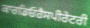
ਕਾਰਡਿਓਰੈਸਪੀਰੇਟਰੀ